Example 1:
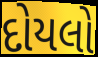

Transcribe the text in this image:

દોયલો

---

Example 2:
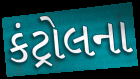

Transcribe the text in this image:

કંટ્રોલના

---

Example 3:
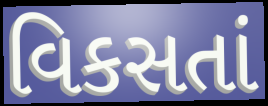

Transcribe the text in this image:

વિકસતાં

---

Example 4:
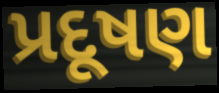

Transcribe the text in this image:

પ્રદૂષણ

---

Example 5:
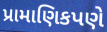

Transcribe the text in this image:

પ્રામાણિકપણે